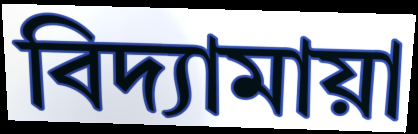
বিদ্যামায়া